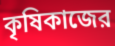
কৃষিকাজের